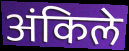
अंकिले